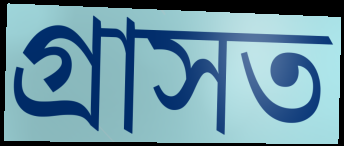
গ্ৰাসত